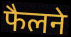
फैलने